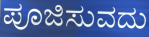
ಪೂಜಿಸುವದು